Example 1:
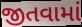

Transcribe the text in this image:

જીતવામાં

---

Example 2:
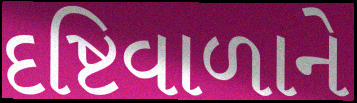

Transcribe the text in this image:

દષ્ટિવાળાને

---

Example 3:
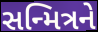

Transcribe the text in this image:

સન્મિત્રને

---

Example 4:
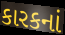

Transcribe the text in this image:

કારકનાં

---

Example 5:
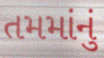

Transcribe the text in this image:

તમમાંનું